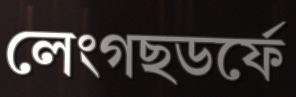
লেংগছডৰ্ফে